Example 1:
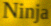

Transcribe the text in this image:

Ninja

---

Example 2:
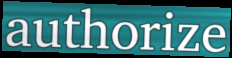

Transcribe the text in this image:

authorize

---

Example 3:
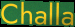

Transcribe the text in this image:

Challa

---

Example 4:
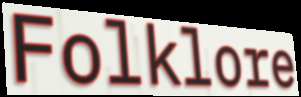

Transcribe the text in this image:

Folklore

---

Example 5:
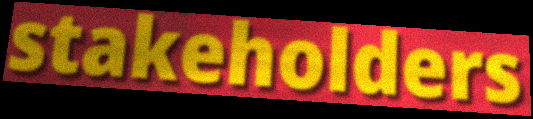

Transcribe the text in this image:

stakeholders